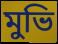
মুভি